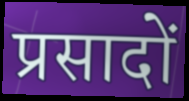
प्रसादों